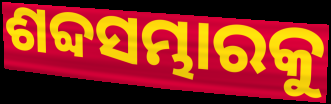
ଶବ୍ଦସମ୍ଭାରକୁ